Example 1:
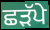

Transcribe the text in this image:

ਛੜੱਪੇ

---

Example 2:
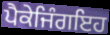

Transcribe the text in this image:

ਪੈਕੇਜਿੰਗਇਹ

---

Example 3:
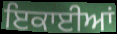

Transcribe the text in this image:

ਇਕਾਈਆਂ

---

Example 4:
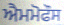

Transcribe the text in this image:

ਐਮਮੋਫੌਸ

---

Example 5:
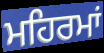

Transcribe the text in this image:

ਮਹਿਰਮਾਂ